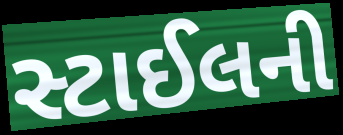
સ્ટાઈલની